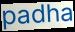
padha